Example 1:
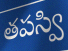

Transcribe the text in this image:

తపస్వి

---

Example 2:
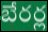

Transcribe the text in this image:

బేరర్ల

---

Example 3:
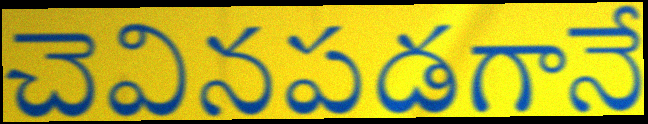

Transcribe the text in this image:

చెవినపడగానే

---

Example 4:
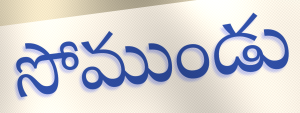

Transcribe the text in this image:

సోముండు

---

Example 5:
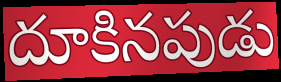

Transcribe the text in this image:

దూకినపుడు